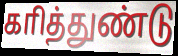
கரித்துண்டு